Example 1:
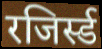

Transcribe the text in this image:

रजिर्स्ड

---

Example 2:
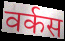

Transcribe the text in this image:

वर्कस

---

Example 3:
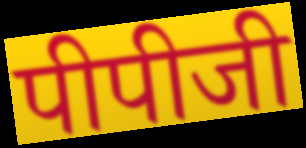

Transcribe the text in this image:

पीपीजी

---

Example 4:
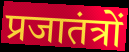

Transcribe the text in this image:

प्रजातंत्रों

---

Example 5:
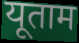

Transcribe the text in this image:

यूताम